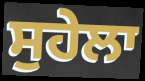
ਸੁਹੇਲਾ